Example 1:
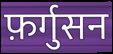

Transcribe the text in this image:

फ़र्गुसन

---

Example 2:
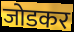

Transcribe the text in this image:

जोडकर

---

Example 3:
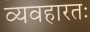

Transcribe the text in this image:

व्यवहारतः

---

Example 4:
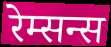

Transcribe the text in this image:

रेम्सन्स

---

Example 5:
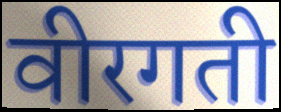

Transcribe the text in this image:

वीरगती